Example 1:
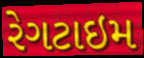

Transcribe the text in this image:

રેગટાઇમ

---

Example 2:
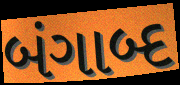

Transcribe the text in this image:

બંગાબ્દ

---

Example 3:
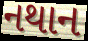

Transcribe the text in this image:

નથાન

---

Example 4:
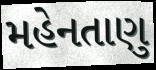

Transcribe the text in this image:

મહેનતાણુ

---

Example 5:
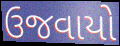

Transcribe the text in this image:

ઉજવાયો